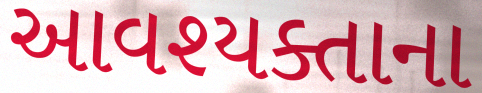
આવશ્યક્તાના